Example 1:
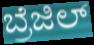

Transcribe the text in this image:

ಬ್ರೆಜಿಲ್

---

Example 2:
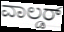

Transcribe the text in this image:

ವಾಲ್ಡರ್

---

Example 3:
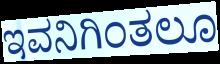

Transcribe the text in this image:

ಇವನಿಗಿಂತಲೂ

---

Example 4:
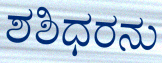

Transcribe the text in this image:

ಶಶಿಧರನು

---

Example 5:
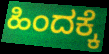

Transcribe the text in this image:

ಹಿಂದಕ್ಕೆ